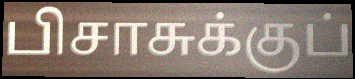
பிசாசுக்குப்